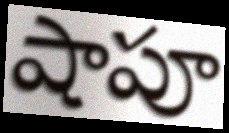
షాపూ